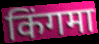
किंगमा